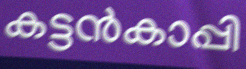
കട്ടൻകാപ്പി